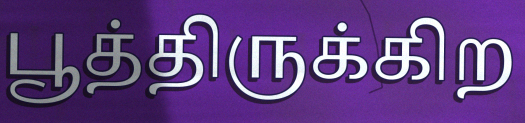
பூத்திருக்கிற